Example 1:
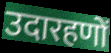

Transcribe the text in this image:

उदारहणों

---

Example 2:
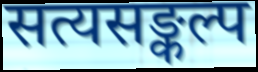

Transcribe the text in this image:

सत्यसङ्कल्प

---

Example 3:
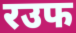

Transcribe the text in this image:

रउफ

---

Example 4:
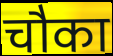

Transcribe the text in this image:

चौका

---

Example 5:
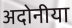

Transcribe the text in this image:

अदोनीया